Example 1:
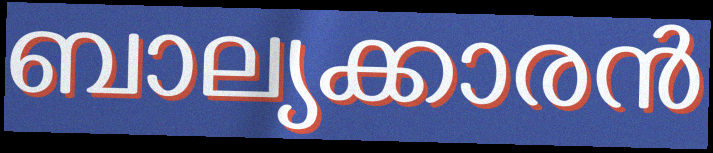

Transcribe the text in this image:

ബാല്യക്കാരൻ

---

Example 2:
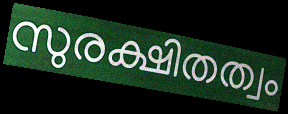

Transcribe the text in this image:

സുരക്ഷിതത്വം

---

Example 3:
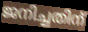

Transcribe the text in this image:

ജനിച്ചതിന്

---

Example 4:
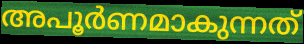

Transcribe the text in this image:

അപൂർണമാകുന്നത്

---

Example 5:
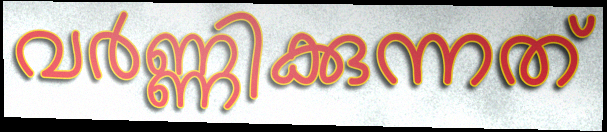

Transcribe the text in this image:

വർണ്ണിക്കുന്നത്